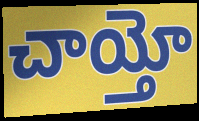
చాయ్తో